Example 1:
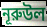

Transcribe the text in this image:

নূরুউল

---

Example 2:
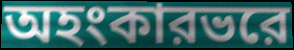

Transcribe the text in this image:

অহংকারভরে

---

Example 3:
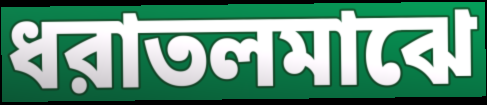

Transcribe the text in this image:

ধরাতলমাঝে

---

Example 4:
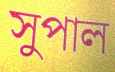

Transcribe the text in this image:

সুপাল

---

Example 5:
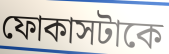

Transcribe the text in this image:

ফোকাসটাকে